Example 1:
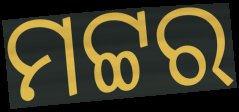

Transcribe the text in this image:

ମଟ୍ଟର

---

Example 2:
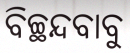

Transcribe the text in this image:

ବିଚ୍ଛନ୍ଦବାବୁ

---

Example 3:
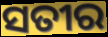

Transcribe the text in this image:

ସତୀର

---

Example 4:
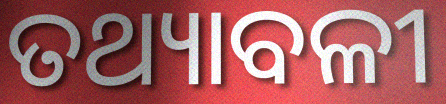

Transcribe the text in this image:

ତଥ୍ୟାବଳୀ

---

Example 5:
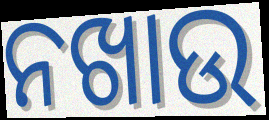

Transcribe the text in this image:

ନଖାଉ